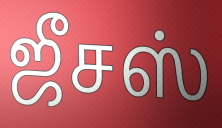
ஜீசஸ்